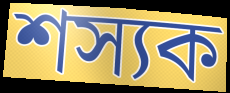
শস্যক